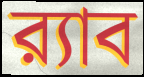
র‍্যাব